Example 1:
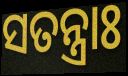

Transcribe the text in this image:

ସତନ୍ତ୍ରାଃ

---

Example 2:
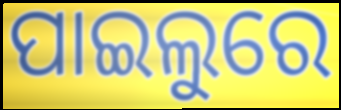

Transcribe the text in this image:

ପାଇଲୁରେ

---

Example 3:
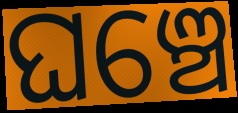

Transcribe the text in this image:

ଘଞ୍ଚେ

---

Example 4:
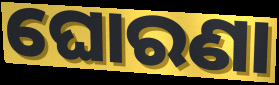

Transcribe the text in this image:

ଘୋରଣା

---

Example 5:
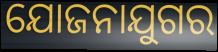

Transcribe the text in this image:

ଯୋଜନାଯୁଗର